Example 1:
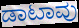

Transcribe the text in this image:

ಡಾಟಾವು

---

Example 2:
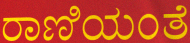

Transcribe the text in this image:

ರಾಣಿಯಂತೆ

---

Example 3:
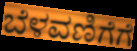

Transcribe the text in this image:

ಬೆಳವಣಿಗೆಗೆ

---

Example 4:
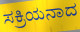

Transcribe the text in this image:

ಸಕ್ರಿಯನಾದ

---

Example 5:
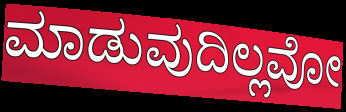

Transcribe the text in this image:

ಮಾಡುವುದಿಲ್ಲವೋ